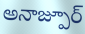
అనాజ్పూర్